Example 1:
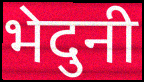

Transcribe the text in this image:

भेदुनी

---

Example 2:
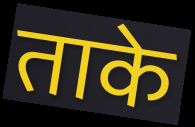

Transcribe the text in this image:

ताके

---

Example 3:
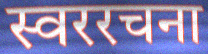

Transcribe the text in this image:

स्वररचना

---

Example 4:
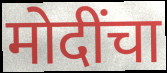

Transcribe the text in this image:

मोदींचा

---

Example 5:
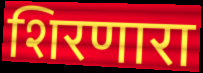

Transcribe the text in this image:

शिरणारा